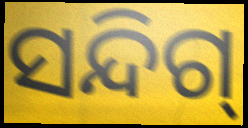
ସନ୍ଦିଗ୍